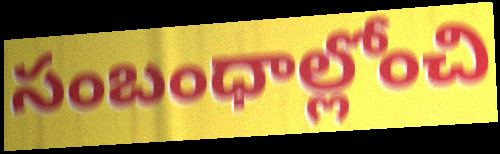
సంబంధాల్లోంచి